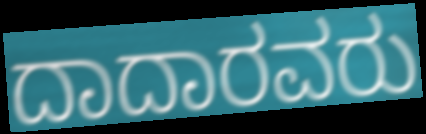
ದಾದಾರವರು